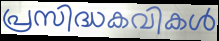
പ്രസിദ്ധകവികൾ